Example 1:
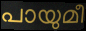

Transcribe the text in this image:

പായുമീ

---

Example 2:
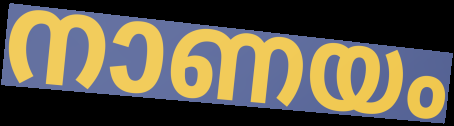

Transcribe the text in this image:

നാണയം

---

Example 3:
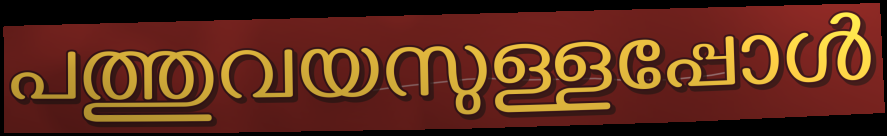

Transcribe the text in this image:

പത്തുവയസുള്ളപ്പോൾ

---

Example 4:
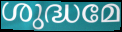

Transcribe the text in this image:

ശുദ്ധമേ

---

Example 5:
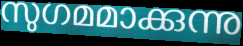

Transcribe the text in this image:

സുഗമമാക്കുന്നു